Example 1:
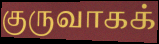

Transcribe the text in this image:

குருவாகக்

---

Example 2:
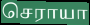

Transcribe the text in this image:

செராயா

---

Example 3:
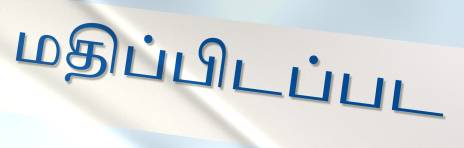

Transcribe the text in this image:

மதிப்பிடப்பட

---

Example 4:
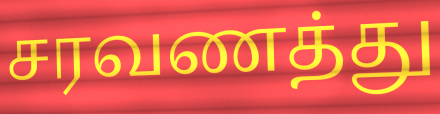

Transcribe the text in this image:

சரவணத்து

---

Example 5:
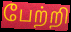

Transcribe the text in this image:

பேற்றி